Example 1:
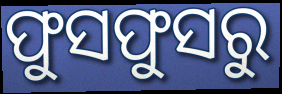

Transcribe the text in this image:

ଫୁସଫୁସରୁ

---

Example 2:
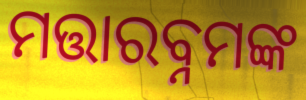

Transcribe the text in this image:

ମତ୍ତାରବ୍ନମଙ୍କ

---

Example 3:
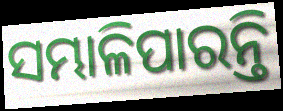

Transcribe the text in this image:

ସମ୍ଭାଳିପାରନ୍ତି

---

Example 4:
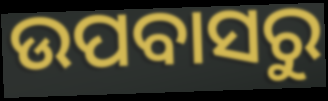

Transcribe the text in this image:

ଉପବାସରୁ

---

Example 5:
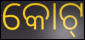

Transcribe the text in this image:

କୋଟ୍